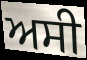
ਅਸੀ